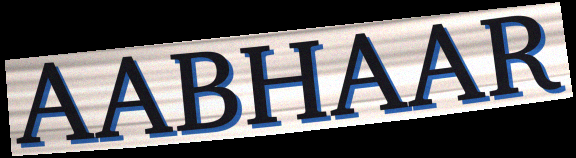
AABHAAR